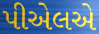
પીએલએ